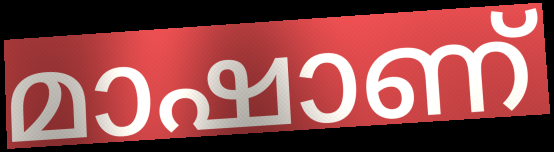
മാഷാണ്